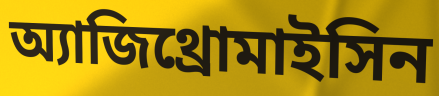
অ্যাজিথ্রোমাইসিন